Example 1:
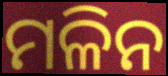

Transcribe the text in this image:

ମଳିନ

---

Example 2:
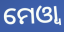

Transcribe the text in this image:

ମେଓ୍ୱା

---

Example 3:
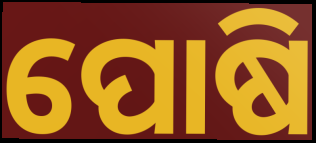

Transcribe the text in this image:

ପୋଷି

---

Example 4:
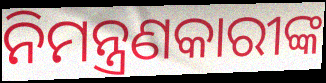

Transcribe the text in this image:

ନିମନ୍ତ୍ରଣକାରୀଙ୍କ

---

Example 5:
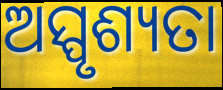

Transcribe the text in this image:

ଅସ୍ପୃଶ୍ୟତା